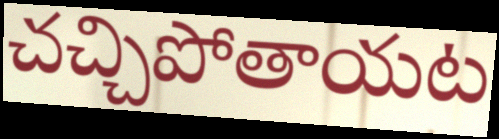
చచ్చిపోతాయట